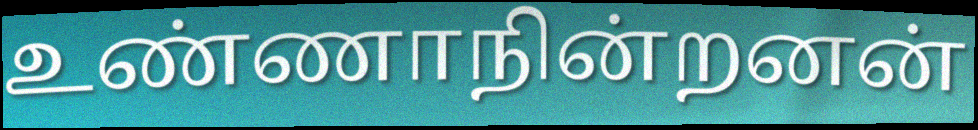
உண்ணாநின்றனன்